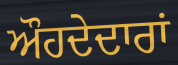
ਔਹਦੇਦਾਰਾਂ